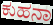
ಕುಹನಾ